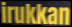
irukkan